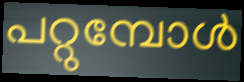
പറ്റുമ്പോൾ